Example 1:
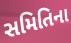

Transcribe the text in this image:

સમિતિના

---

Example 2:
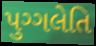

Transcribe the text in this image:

પુગ્ગલેતિ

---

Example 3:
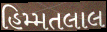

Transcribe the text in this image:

હિમ્મતલાલ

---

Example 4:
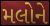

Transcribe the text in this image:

મલોને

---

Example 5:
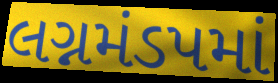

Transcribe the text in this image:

લગ્નમંડપમાં